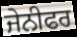
ਜੇਨੀਫਰ